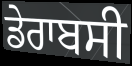
ਡੇਰਾਬਸੀ